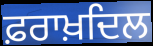
ਫ਼ਰਾਖ਼ਦਿਲ